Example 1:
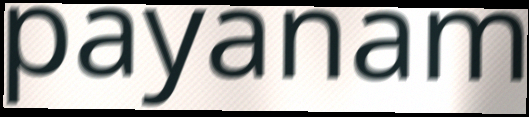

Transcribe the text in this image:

payanam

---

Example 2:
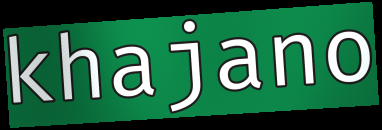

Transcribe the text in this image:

khajano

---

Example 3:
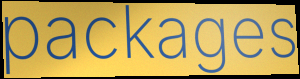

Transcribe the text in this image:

packages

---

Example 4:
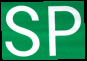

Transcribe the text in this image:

SP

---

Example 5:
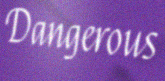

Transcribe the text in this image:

Dangerous